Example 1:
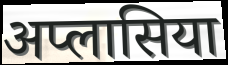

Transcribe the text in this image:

अप्लासिया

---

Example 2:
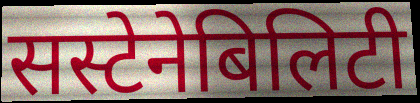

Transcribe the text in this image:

सस्टेनेबिलिटी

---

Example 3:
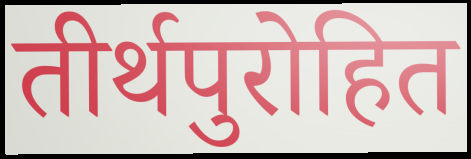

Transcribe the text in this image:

तीर्थपुरोहित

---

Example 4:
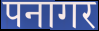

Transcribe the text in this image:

पनागर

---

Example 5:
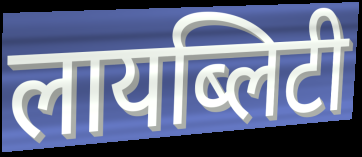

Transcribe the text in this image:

लायब्लिटी